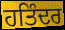
ਹਤਿੰਦਰ